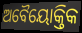
ଅବୈୟୋକ୍ତିକ